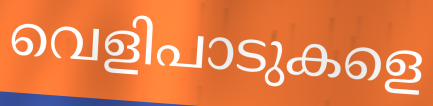
വെളിപാടുകളെ